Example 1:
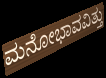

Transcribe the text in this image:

ಮನೋಭಾವವಿತ್ತು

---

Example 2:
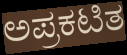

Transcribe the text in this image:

ಅಪ್ರಕಟಿತ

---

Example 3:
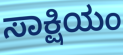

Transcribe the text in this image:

ಸಾಕ್ಷಿಯಂ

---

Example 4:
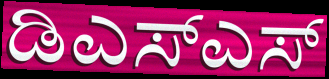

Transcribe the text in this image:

ಡಿಎಸ್ಎಸ್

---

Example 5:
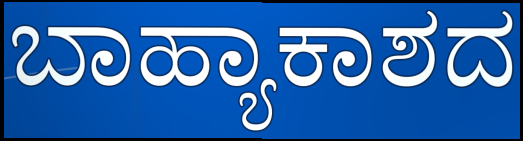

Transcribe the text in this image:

ಬಾಹ್ಯಾಕಾಶದ